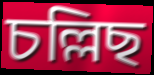
চল্লিছ